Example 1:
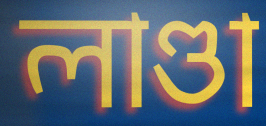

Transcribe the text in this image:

লাণ্ডা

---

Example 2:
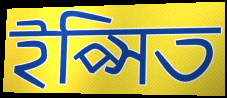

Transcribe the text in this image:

ইপ্সিত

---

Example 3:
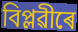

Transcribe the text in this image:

বিপ্লৱীৰে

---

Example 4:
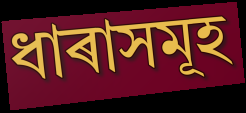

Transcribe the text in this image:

ধাৰাসমূহ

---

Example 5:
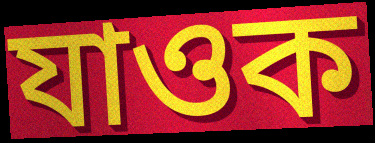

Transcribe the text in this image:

যাওক